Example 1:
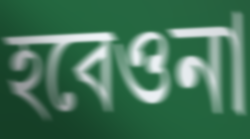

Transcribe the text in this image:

হবেওনা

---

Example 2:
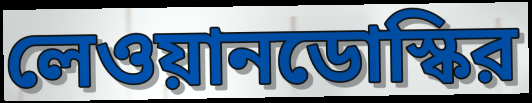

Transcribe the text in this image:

লেওয়ানডোস্কির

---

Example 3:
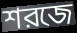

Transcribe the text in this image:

শরজে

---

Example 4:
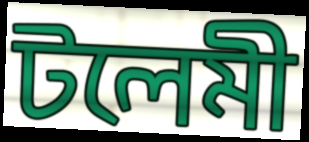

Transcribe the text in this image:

টলেমী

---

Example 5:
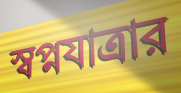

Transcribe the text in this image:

স্বপ্নযাত্রার